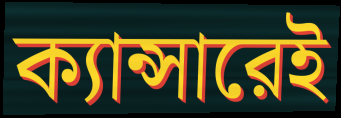
ক্যান্সারেই